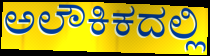
ಅಲೌಕಿಕದಲ್ಲಿ